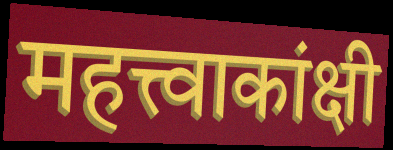
महत्त्वाकांक्षी